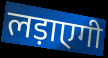
लड़ाएगी